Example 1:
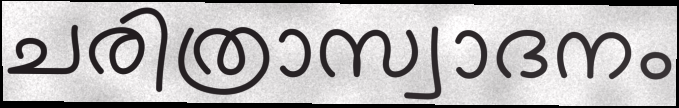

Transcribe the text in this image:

ചരിത്രാസ്വാദനം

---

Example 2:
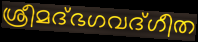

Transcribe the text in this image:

ശ്രീമദ്ഭഗവദ്ഗീത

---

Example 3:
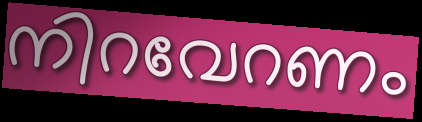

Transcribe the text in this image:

നിറവേറണം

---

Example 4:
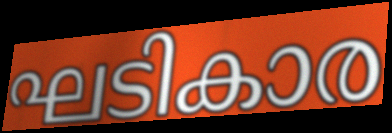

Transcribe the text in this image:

ഘടികാര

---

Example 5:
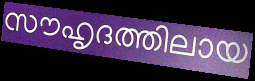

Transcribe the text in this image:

സൗഹൃദത്തിലായ